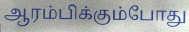
ஆரம்பிக்கும்போது